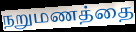
நறுமணத்தை